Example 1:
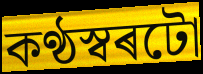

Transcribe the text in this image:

কণ্ঠস্বৰটো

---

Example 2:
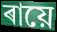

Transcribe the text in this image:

ৰায়ে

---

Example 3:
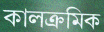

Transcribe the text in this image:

কালক্ৰমিক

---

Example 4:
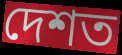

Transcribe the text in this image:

দেশত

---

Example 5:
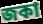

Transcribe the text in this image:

জকা